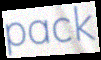
pack